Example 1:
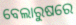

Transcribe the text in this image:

ବେଲାରୁଷରେ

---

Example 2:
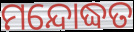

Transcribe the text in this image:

ମନ୍ଦୋଦ୍ଧତ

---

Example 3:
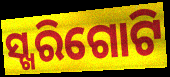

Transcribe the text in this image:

ସ୍ଖରିଗୋଟି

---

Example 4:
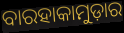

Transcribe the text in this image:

ବାରହାକାମୁଡ଼ାର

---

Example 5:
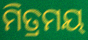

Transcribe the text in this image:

ମିତ୍ରମୟ